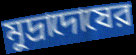
মুদ্রাদোষের